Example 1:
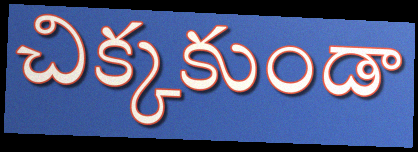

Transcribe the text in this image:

చిక్కకుండా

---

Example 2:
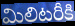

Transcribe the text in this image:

మిలిటరీకి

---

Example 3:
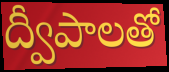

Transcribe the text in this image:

ద్వీపాలతో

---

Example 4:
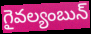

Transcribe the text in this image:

గైవల్యంబున్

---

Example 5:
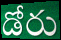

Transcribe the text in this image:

డోరు